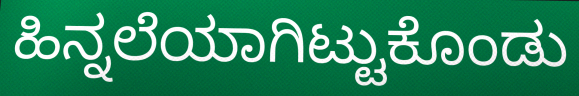
ಹಿನ್ನಲೆಯಾಗಿಟ್ಟುಕೊಂಡು